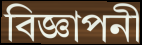
বিজ্ঞাপনী